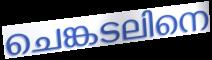
ചെങ്കടലിനെ